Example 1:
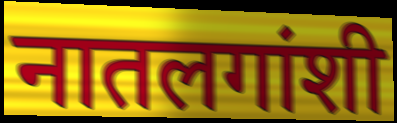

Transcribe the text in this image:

नातलगांशी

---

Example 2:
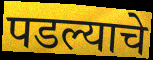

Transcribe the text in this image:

पडल्याचे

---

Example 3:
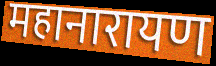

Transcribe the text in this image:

महानारायण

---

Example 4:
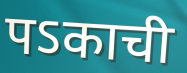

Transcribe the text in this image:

पऽकाची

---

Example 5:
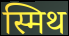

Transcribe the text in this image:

स्मिथ